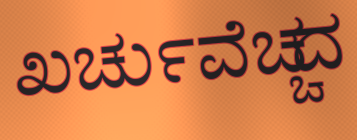
ಖರ್ಚುವೆಚ್ಚದ